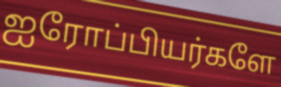
ஐரோப்பியர்களே